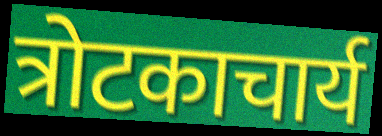
त्रोटकाचार्य